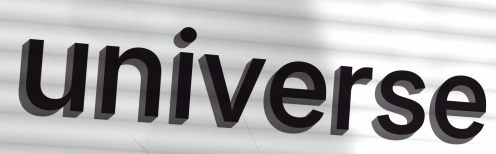
universe